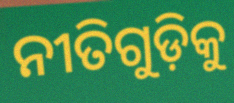
ନୀତିଗୁଡ଼ିକୁ